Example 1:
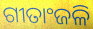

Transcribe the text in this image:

ଗୀତାଂଜଳି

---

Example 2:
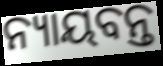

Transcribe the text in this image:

ନ୍ୟାୟବନ୍ତ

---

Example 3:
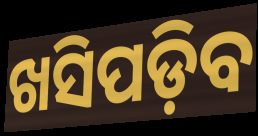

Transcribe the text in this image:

ଖସିପଡ଼ିବ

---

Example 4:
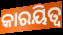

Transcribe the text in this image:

କାରୟିତ୍ୱ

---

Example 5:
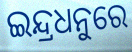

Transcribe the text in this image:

ଇନ୍ଦ୍ରଧନୁରେ